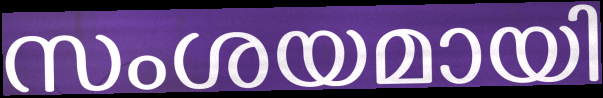
സംശയമായി